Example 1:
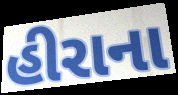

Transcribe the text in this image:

હીરાના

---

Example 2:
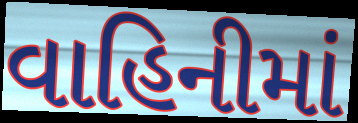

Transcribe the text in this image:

વાહિનીમાં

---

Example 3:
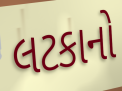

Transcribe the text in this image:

લટકાનો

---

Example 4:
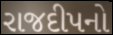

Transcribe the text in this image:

રાજદીપનો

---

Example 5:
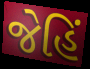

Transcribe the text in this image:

જેહિં